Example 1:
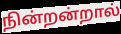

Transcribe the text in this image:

நின்றன்றால்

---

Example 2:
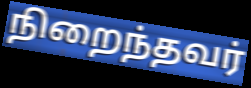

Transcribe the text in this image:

நிறைந்தவர்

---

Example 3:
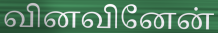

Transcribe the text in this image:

வினவினேன்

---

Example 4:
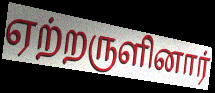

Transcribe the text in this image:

ஏற்றருளினார்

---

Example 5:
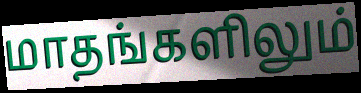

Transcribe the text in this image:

மாதங்களிலும்